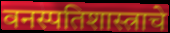
वनस्पतिशास्त्राचे